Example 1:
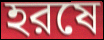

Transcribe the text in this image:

হরষে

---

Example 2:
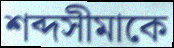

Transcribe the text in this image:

শব্দসীমাকে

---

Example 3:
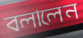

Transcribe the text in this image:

বলালেন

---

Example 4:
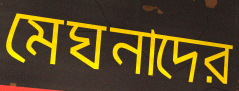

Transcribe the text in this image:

মেঘনাদের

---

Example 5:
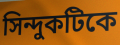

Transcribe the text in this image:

সিন্দুকটিকে